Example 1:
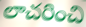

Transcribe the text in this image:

లాచరించి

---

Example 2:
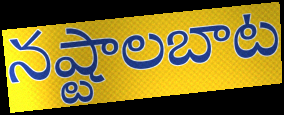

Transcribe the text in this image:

నష్టాలబాట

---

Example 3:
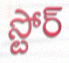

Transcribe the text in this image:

స్టోర్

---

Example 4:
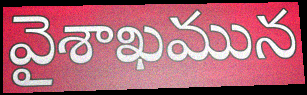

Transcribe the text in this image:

వైశాఖమున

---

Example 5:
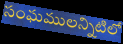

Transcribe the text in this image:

సంఘములన్నిటిలో